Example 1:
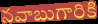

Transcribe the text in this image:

నవాబుగారికి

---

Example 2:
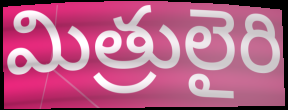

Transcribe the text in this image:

మిత్రులైరి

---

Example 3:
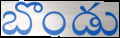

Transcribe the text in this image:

బొండు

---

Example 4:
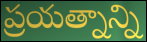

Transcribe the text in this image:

ప్రయత్నాన్ని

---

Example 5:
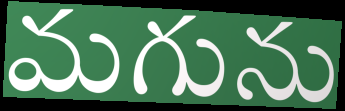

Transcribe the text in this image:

మగును